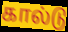
கால்டு